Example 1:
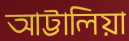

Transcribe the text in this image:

আট্টালিয়া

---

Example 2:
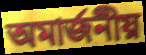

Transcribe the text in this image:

অমার্জনীয়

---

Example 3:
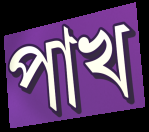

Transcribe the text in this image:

পাখ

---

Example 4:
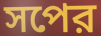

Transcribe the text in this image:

সপের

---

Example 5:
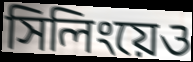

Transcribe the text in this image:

সিলিংয়েও